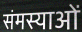
संमस्याओं